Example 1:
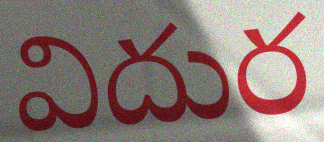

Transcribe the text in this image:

విదుర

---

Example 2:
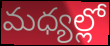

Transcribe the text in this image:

మధ్యల్లో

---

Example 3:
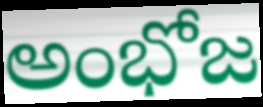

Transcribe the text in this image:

అంభోజ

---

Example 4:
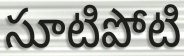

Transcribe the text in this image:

సూటిపోటి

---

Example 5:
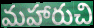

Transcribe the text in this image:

మహారుచి